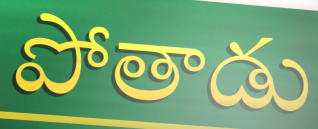
పోతాడు